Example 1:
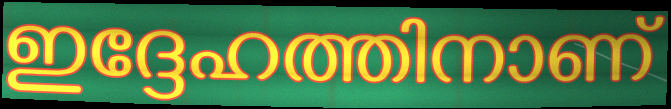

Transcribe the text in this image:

ഇദ്ദേഹത്തിനാണ്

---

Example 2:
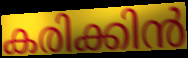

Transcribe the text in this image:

കരിക്കിൻ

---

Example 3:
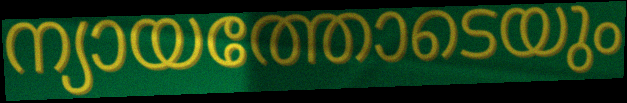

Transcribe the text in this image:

ന്യായത്തോടെയും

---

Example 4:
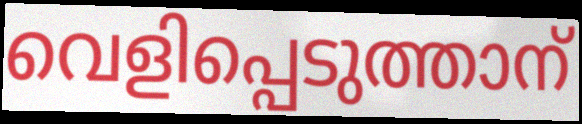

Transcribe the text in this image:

വെളിപ്പെടുത്താന്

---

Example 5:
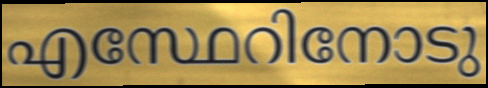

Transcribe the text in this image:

എസ്ഥേറിനോടു